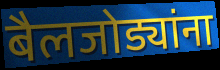
बैलजोड्यांना